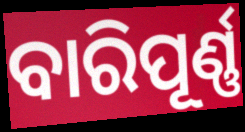
ବାରିପୂର୍ଣ୍ଣ